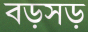
বড়সড়